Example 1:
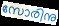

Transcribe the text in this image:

സോരിനു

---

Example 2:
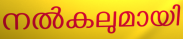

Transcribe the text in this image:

നൽകലുമായി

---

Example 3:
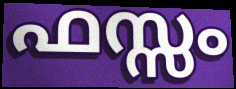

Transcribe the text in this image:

ഫസ്സം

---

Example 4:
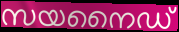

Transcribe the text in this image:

സയനൈഡ്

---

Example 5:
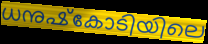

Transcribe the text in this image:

ധനുഷ്‌കോടിയിലെ